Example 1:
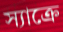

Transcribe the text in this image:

স্যাক্রে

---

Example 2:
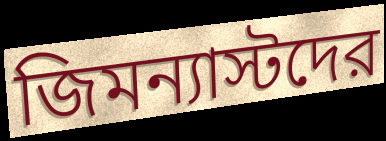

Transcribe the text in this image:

জিমন্যাস্টদের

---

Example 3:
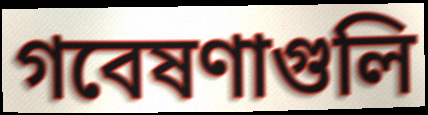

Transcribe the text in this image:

গবেষণাগুলি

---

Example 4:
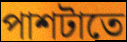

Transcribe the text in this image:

পাশটাতে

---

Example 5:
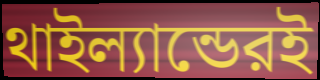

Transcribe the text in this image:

থাইল্যান্ডেরই